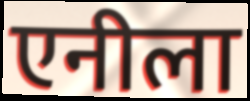
एनीला